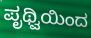
ಪೃಥ್ವಿಯಿಂದ